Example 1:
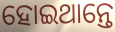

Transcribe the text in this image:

ହୋଇଥାନ୍ତେ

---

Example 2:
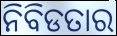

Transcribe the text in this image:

ନିବିଡତାର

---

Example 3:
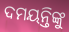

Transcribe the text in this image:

ଦମୟନ୍ତିଙ୍କୁ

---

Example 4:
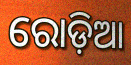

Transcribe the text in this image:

ରୋଡ଼ିଆ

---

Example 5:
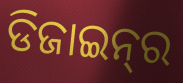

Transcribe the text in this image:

ଡିଜାଇନ୍‌ର